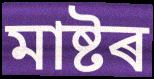
মাষ্টৰ